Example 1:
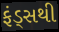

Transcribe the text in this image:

ફંડ્સથી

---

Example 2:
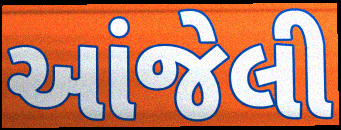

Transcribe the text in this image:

આંજેલી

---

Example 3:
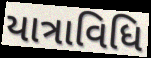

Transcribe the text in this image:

યાત્રાવિધિ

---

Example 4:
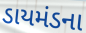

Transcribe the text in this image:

ડાયમંડના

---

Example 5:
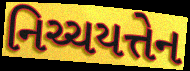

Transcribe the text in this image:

નિચ્ચયત્તેન